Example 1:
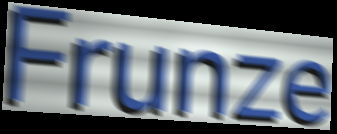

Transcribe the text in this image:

Frunze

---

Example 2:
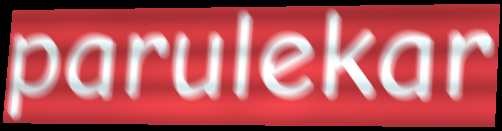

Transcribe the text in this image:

parulekar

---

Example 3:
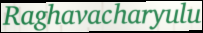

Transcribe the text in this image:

Raghavacharyulu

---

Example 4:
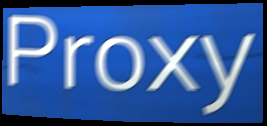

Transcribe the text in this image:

Proxy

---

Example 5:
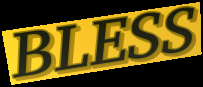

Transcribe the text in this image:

BLESS